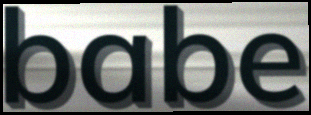
babe